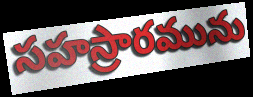
సహస్రారమును